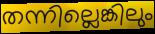
തന്നില്ലെങ്കിലും